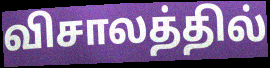
விசாலத்தில்